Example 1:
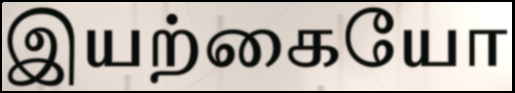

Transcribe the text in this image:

இயற்கையோ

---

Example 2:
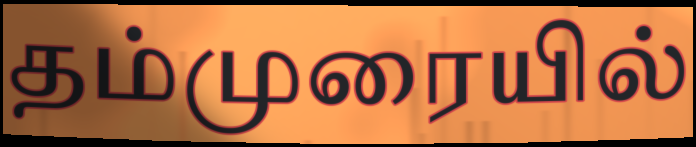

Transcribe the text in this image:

தம்முரையில்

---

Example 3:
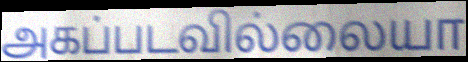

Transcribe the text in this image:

அகப்படவில்லையா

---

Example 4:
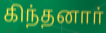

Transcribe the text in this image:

கிந்தனார்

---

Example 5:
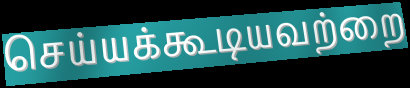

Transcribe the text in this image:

செய்யக்கூடியவற்றை